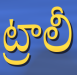
ట్రాలీ